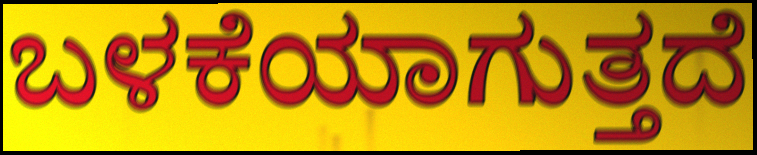
ಬಳಕೆಯಾಗುತ್ತದೆ